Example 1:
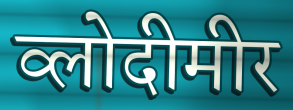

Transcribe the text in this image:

व्लोदीमीर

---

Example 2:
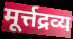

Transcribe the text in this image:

मूर्त्तद्रव्य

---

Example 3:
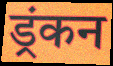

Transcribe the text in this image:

ड्रंकन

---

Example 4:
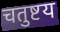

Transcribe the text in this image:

चतुष्टय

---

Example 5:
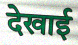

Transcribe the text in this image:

देखाई